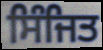
ਸਿੰਜਿਤ